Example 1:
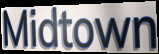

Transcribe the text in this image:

Midtown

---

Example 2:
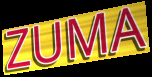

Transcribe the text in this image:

ZUMA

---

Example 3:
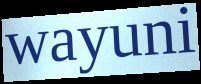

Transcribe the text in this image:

wayuni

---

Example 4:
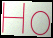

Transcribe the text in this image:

Ho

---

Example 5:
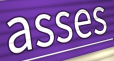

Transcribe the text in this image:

asses